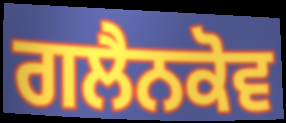
ਗਲੈਨਕੋਵ